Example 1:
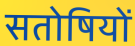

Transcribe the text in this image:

सतोषियों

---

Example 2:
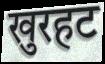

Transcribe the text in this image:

खुरहट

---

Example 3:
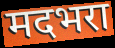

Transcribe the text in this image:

मदभरा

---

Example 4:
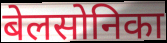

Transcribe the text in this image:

बेलसोनिका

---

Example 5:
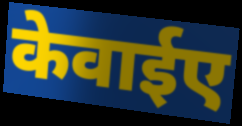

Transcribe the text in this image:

केवाईए